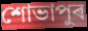
শোভাপুৰ